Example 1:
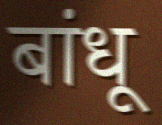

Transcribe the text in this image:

बांधू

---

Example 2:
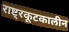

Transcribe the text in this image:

राष्ट्रकूटकालीन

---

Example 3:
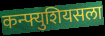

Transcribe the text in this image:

कन्फ्युशियसला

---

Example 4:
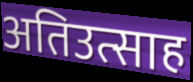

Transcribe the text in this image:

अतिउत्साह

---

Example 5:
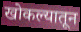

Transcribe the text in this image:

खोकल्यातून